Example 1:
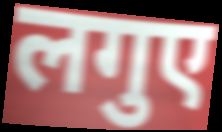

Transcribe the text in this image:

लगुए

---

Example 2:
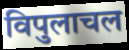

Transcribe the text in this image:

विपुलाचल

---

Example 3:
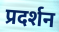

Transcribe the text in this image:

प्रदर्शन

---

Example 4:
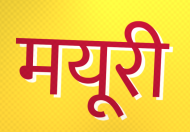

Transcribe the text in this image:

मयूरी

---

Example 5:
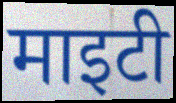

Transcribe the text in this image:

माइटी